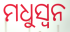
ମଧୁସ୍ୱନ